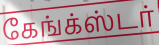
கேங்க்ஸ்டர்